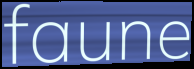
faune